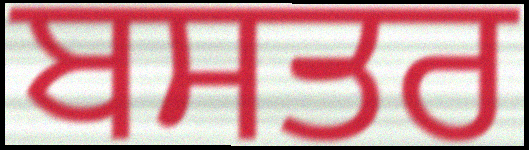
ਬਸਤਰ